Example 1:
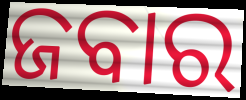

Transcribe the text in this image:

ଜବାର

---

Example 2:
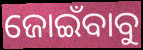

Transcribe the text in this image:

ଜୋଇଁବାବୁ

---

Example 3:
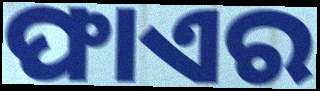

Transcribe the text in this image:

ଫାଏର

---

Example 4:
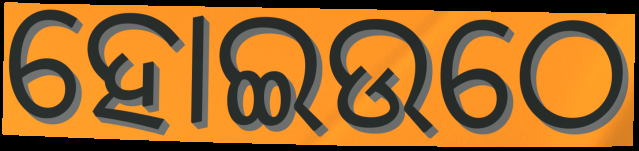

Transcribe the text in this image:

ହୋଇଉଠେ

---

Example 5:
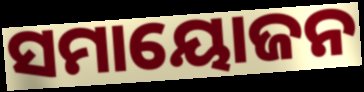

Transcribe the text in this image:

ସମାୟୋଜନ